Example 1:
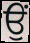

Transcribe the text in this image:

ਉਂ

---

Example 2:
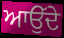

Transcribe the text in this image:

ਆਉੱਦੇ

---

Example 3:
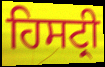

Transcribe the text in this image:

ਹਿਸਟ੍ਰੀ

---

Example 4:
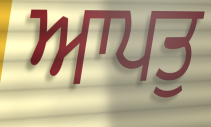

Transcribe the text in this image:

ਆਪਤੁ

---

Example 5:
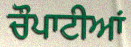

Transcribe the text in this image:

ਚੌਪਾਟੀਆਂ